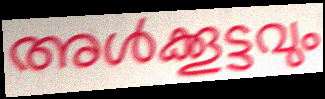
അൾക്കൂട്ടവും